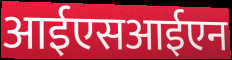
आईएसआईएन